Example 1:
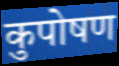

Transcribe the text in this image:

कुपोषण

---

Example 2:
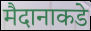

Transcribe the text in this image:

मैदानाकडे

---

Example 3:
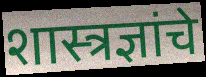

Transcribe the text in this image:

शास्त्रज्ञांचे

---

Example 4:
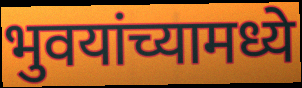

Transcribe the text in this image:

भुवयांच्यामध्ये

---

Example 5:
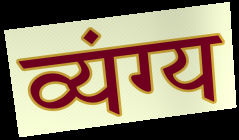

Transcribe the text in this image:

व्यंग्य